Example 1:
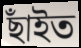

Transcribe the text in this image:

ছাঁইত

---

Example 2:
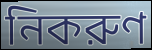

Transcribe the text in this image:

নিকৰুণ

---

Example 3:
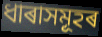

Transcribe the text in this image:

ধাৰাসমূহৰ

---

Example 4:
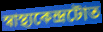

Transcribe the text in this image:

স্বাস্থ্যকেন্দ্ৰটোত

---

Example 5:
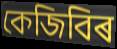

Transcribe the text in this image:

কেজিবিৰ